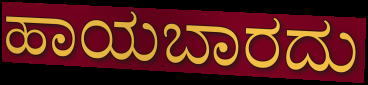
ಹಾಯಬಾರದು